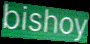
bishoy